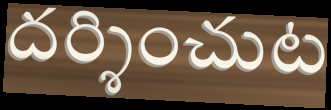
దర్శించుట